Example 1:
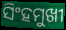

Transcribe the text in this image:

ସିଂହମୁଖୀ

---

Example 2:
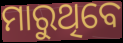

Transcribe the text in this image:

ମାରୁଥିବେ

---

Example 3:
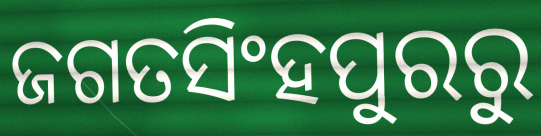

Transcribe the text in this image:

ଜଗତସିଂହପୁରରୁ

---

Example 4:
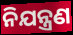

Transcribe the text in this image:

ନିଯନ୍ତ୍ରଣ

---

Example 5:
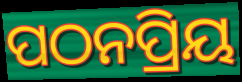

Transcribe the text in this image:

ପଠନପ୍ରିୟ